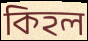
কিহল